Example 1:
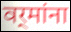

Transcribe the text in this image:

वर्मांना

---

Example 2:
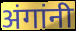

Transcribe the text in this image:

अंगांनी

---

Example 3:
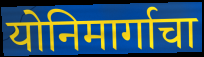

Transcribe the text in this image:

योनिमार्गाचा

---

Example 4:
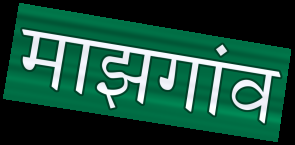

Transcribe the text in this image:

माझगांव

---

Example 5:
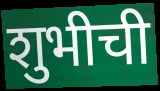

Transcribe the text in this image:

शुभीची